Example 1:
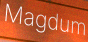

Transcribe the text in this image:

Magdum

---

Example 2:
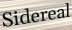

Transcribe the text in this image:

Sidereal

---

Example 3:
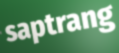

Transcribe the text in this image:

saptrang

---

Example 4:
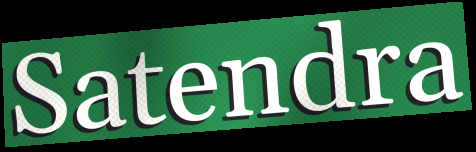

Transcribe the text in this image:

Satendra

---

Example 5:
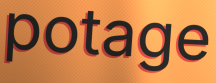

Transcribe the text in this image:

potage